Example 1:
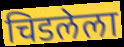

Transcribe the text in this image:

चिडलेला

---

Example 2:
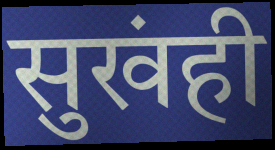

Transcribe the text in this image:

सुखंही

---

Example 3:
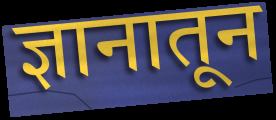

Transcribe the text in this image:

ज्ञानातून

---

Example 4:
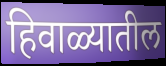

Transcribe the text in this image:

हिवाळ्यातील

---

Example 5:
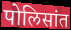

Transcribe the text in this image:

पोलिसांत